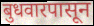
बुधवारपासून